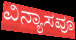
ವಿನ್ಯಾಸವೂ